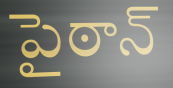
పైఠాన్